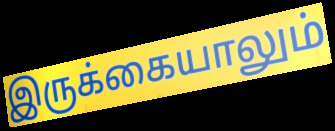
இருக்கையாலும்